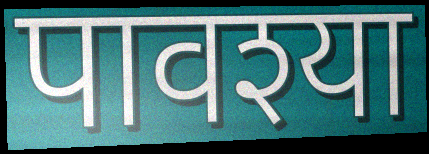
पावश्या